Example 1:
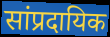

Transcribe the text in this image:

सांप्रदायिक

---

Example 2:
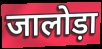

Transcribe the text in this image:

जालोड़ा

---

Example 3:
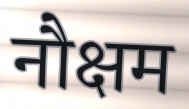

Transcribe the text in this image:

नौक्षम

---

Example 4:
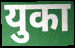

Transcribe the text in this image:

युका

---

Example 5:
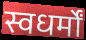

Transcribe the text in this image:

स्वधर्मों